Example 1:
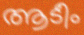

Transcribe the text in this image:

ആടീം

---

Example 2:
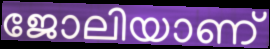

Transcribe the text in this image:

ജോലിയാണ്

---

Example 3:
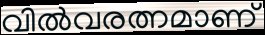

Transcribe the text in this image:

വിൽവരത്നമാണ്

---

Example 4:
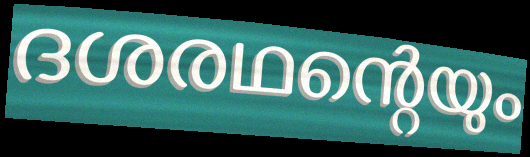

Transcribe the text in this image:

ദശരഥന്റെയും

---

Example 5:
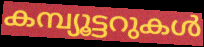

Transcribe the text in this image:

കമ്പ്യൂട്ടറുകൾ